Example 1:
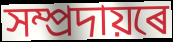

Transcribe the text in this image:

সম্প্ৰদায়ৰে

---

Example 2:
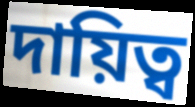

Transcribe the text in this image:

দায়িত্ব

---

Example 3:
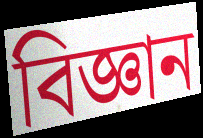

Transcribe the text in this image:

বিজ্ঞান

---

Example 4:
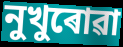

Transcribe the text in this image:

নুখুৰোৱা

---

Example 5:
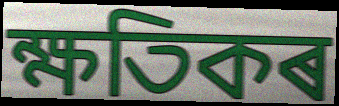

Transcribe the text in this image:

ক্ষতিকৰ